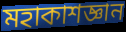
মহাকাশজ্ঞান